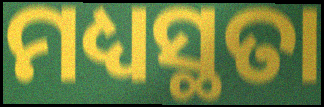
ମଧ୍ୟସ୍ଥତା